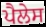
ਪੈਲੇਸ